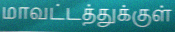
மாவட்டத்துக்குள்